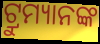
ଟ୍ରୁମ୍ୟାନଙ୍କ